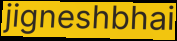
jigneshbhai